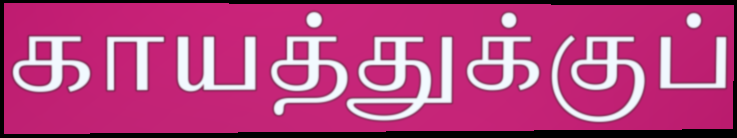
காயத்துக்குப்